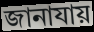
জানাযায়